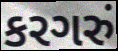
કરગરું